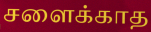
சளைக்காத